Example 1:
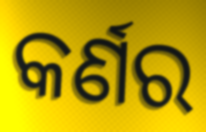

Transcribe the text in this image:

କର୍ଣର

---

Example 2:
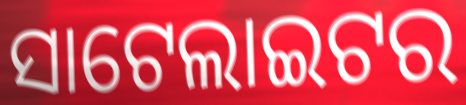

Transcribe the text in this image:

ସାଟେଲାଇଟର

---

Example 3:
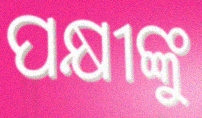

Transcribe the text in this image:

ପକ୍ଷୀଙ୍କୁ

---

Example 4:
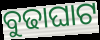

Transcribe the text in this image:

ବୁଢାଘାଟ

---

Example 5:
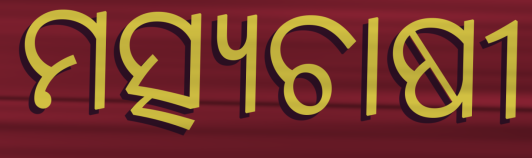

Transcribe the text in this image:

ମତ୍ସ୍ୟଚାଷୀ